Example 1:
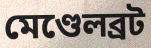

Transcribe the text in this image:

মেণ্ডেলব্ৰট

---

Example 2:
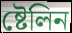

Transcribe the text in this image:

ষ্টেলিন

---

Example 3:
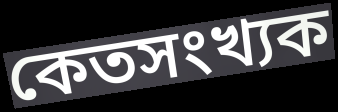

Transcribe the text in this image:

কেতসংখ্যক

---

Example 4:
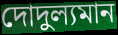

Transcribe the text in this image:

দোদুল্যমান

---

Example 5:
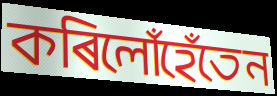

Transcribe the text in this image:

কৰিলোঁহেঁতেন